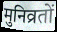
मुनिव्रतों